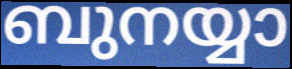
ബുനയ്യാ